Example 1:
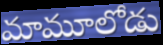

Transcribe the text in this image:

మామూలోడు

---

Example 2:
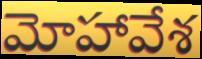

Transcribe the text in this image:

మోహావేశ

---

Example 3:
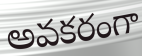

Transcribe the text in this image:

అవకరంగా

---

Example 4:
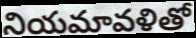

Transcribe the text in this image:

నియమావళితో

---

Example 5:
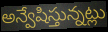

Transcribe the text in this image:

అన్వేషిస్తున్నట్లు